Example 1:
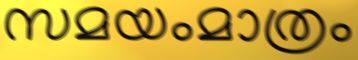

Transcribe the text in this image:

സമയംമാത്രം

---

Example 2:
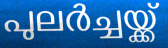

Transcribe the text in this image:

പുലർച്ചയ്ക്ക്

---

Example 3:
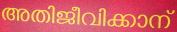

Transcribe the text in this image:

അതിജീവിക്കാന്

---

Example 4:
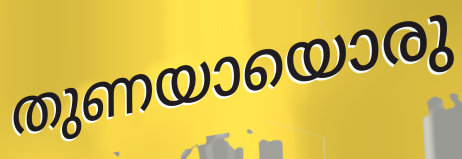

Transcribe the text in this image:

തുണയായൊരു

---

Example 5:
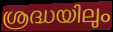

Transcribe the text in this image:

ശ്രദ്ധയിലും